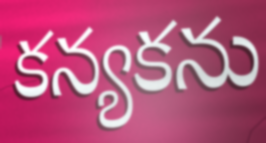
కన్యకను